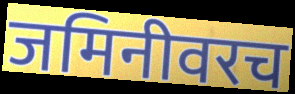
जमिनीवरच